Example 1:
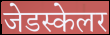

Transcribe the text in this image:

जेडस्केलर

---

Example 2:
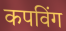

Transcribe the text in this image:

कपविंग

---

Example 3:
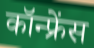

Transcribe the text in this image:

कॉन्फ्रेंस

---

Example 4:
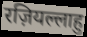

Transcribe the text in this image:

रज़ियल्लाहु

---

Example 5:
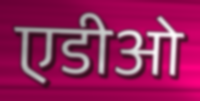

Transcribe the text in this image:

एडीओ